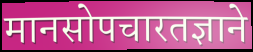
मानसोपचारतज्ञाने